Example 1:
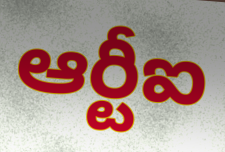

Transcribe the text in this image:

ఆర్టీఐ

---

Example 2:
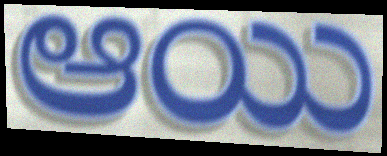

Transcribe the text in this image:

ఆయి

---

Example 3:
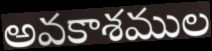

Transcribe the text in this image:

అవకాశముల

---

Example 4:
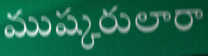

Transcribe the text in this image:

ముష్కరులారా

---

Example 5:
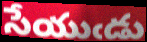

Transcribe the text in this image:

సేయుఁడు